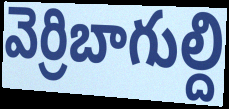
వెర్రిబాగుల్ది